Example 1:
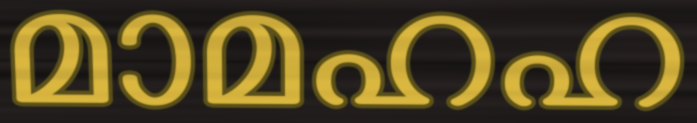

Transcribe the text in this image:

മാമഹഹ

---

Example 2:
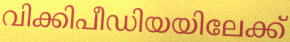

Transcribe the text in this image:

വിക്കിപീഡിയയിലേക്ക്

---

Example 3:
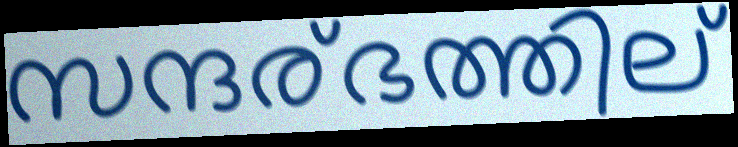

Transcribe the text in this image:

സന്ദര്ഭത്തില്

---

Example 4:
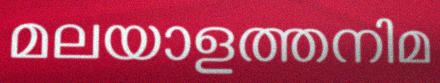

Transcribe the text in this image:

മലയാളത്തനിമ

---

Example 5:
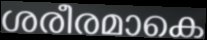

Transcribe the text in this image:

ശരീരമാകെ